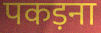
पकड़ना